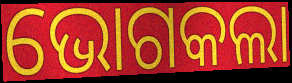
ଭୋଗକଲା